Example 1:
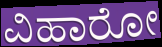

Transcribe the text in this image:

ವಿಹಾರೋ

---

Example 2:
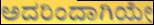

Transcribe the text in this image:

ಅದರಿಂದಾಗಿಯೇ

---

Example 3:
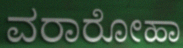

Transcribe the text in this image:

ವರಾರೋಹಾ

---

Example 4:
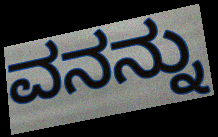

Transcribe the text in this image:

ವನನ್ನು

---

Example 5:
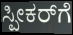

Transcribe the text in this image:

ಸ್ಪೀಕರ್‌ಗೆ